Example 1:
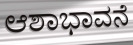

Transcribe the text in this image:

ಆಶಾಭಾವನೆ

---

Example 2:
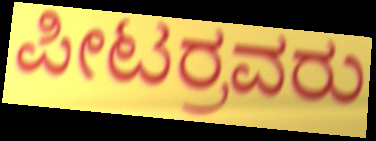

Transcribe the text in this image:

ಪೀಟರ್‍ರವರು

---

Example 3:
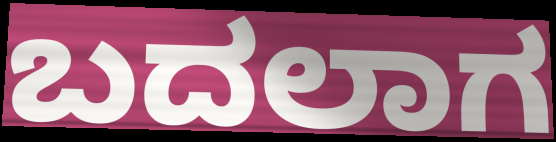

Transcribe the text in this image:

ಬದಲಾಗ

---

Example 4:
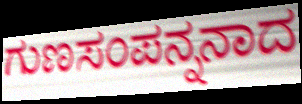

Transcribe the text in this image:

ಗುಣಸಂಪನ್ನನಾದ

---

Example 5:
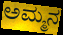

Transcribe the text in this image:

ಅಮ್ಮನ